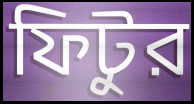
ফিটুর